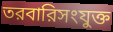
তরবারিসংযুক্ত